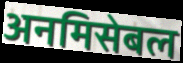
अनमिसेबल